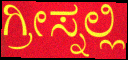
ಗ್ರೀಸ್ನಲ್ಲಿ